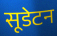
सूडेटन